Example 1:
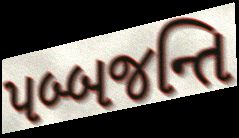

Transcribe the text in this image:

પબ્બજન્તિ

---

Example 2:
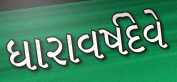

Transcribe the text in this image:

ધારાવર્ષદેવે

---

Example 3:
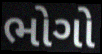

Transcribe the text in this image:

ભોગો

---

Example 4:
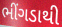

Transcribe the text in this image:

ભીંગડાથી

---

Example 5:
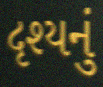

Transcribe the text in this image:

દૃશ્યનું